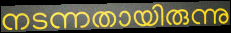
നടന്നതായിരുന്നു